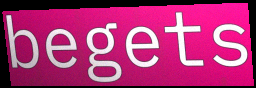
begets